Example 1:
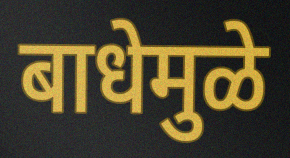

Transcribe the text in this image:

बाधेमुळे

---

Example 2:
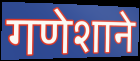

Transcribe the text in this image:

गणेशाने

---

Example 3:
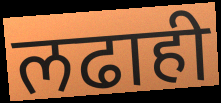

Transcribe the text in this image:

लढाही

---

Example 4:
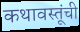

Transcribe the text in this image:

कथावस्तूंची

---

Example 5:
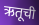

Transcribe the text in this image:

ऋतूची